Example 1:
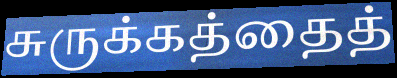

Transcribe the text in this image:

சுருக்கத்தைத்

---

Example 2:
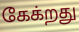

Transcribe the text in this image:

கேக்றது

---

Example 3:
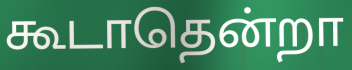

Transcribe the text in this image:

கூடாதென்றா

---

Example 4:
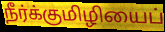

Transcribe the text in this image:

நீர்க்குமிழியைப்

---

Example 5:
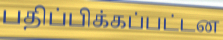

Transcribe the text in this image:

பதிப்பிக்கப்பட்டன